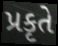
પ્રકૃતે